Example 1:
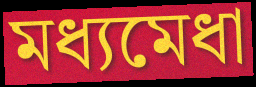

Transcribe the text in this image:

মধ্যমেধা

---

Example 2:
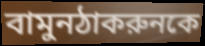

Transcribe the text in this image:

বামুনঠাকরুনকে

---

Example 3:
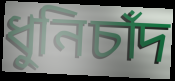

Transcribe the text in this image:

ধুনিচাঁদ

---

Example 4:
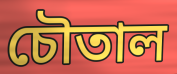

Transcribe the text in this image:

চৌতাল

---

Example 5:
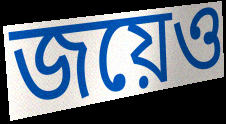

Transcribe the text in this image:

জয়েও